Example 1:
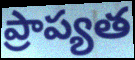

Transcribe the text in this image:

ప్రాప్యత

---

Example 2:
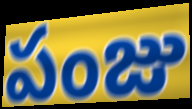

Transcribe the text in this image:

పంజు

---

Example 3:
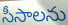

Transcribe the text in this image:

సీసాలను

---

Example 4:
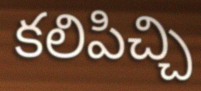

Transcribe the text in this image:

కలిపిచ్చి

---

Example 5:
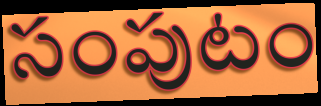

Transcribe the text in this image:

సంపుటం